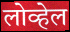
लोव्हेल